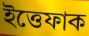
ইত্তেফাক